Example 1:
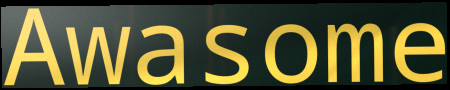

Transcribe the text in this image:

Awasome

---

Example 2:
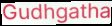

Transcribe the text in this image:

Gudhgatha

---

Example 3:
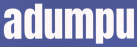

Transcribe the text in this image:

adumpu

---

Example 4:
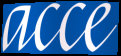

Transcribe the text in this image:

acce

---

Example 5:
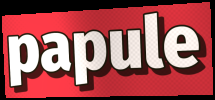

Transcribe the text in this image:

papule